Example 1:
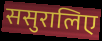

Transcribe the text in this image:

ससुरालिए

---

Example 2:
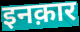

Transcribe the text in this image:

इनक़ार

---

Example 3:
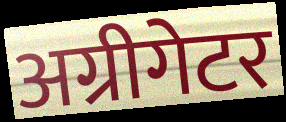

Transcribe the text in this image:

अग्रीगेटर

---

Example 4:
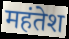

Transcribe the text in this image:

महंतेश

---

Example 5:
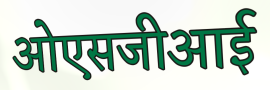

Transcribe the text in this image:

ओएसजीआई